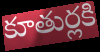
కూతుర్లకి